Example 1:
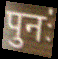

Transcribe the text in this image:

पुनः॑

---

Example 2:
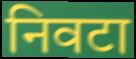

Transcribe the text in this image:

निवटा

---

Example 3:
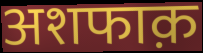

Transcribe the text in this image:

अशफाक़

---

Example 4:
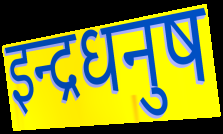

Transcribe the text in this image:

इन्‍द्रधनुष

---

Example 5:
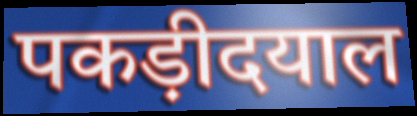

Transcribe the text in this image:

पकड़ीदयाल